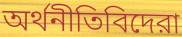
অর্থনীতিবিদেরা